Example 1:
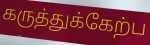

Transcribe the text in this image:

கருத்துக்கேற்ப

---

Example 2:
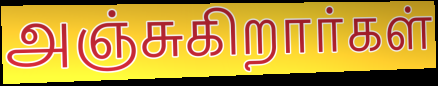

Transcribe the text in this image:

அஞ்சுகிறார்கள்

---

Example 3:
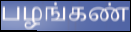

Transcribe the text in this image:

பழங்கண்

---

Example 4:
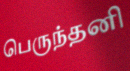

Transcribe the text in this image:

பெருந்தனி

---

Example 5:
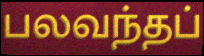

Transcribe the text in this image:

பலவந்தப்